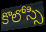
కొలోస్సి